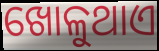
ଖୋଳୁଥାଏ